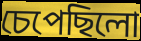
চেপেছিলো